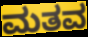
ಮತವ